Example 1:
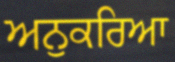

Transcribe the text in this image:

ਅਨੁਕਰਿਆ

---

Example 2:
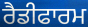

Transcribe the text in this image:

ਰੈਡੀਫਾਰਮ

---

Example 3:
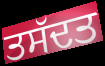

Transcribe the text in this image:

ਤਸੱਦਤ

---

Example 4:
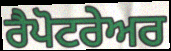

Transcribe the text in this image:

ਰੈਪੋਟਰੇਅਰ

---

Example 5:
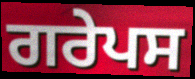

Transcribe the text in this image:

ਗਰੇਪਸ